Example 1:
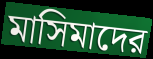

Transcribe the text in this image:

মাসিমাদের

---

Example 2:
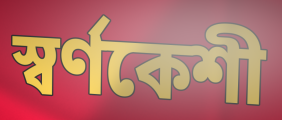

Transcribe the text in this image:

স্বর্ণকেশী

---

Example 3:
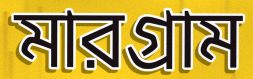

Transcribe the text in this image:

মারগ্রাম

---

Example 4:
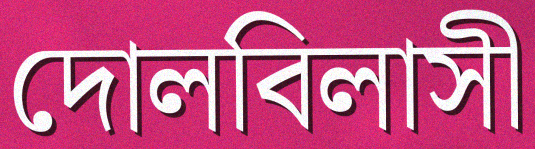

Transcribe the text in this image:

দোলবিলাসী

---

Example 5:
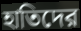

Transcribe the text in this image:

হাতিদের